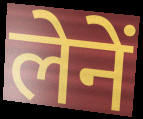
लेनें